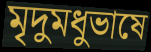
মৃদুমধুভাষে